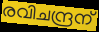
രവിചന്ദ്രന്